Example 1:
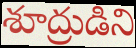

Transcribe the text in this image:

శూద్రుడిని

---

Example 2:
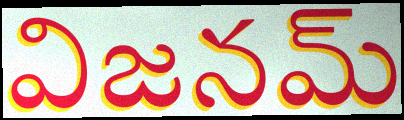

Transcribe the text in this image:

విజనమ్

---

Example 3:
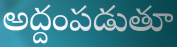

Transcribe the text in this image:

అద్దంపడుతూ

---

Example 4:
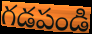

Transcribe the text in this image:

గడపండి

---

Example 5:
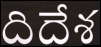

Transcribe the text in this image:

దిదేశ